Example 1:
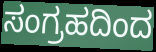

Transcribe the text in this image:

ಸಂಗ್ರಹದಿಂದ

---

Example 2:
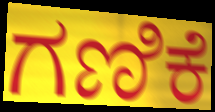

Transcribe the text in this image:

ಗಣಿಕೆ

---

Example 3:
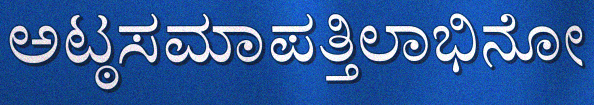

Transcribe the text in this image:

ಅಟ್ಠಸಮಾಪತ್ತಿಲಾಭಿನೋ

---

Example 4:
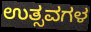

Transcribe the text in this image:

ಉತ್ಸವಗಳ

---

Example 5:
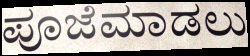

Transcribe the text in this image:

ಪೂಜೆಮಾಡಲು